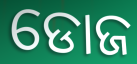
ଡୋଜ